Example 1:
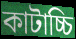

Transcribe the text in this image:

কাটাচ্চি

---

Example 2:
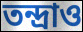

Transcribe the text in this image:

তন্দ্রাও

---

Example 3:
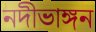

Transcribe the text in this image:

নদীভাঙ্গন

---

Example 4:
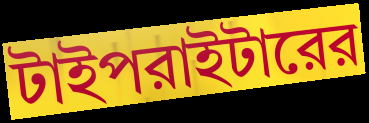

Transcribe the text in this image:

টাইপরাইটারের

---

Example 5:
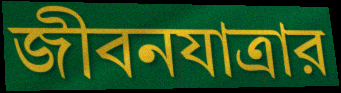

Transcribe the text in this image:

জীবনযাত্রার